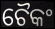
ଚୈକଂ